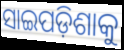
ସାଇପଡ଼ିଶାକୁ